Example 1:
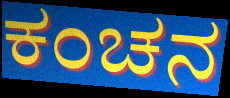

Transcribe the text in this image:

ಕಂಚನ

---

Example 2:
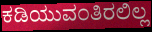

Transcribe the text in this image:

ಕಡಿಯುವಂತಿರಲಿಲ್ಲ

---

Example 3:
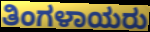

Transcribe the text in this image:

ತಿಂಗಳಾಯರು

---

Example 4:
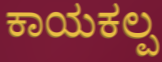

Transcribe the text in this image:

ಕಾಯಕಲ್ಪ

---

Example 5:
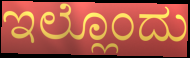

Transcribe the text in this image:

ಇಲ್ಲೊಂದು